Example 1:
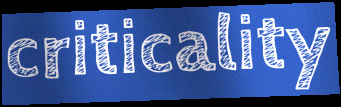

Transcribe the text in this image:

criticality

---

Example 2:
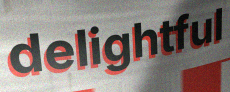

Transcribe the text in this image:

delightful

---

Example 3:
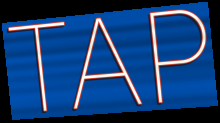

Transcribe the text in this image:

TAP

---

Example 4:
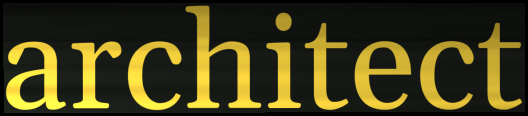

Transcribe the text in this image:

architect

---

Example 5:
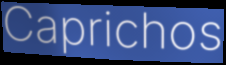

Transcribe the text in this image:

Caprichos